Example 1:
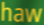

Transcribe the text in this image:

haw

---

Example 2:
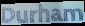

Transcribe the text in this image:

Durham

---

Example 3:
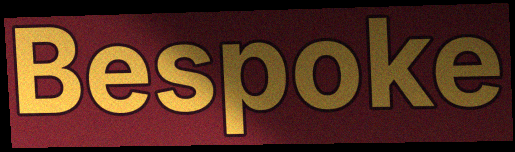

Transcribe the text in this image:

Bespoke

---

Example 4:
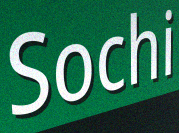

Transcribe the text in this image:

Sochi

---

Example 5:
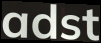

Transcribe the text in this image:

adst